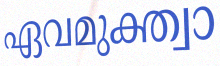
ഏവമുക്ത്വാ